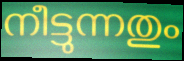
നീട്ടുന്നതും